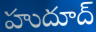
హుదూద్